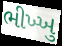
ભીખ્ખુ